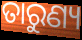
ତାରୁଣ୍ୟ